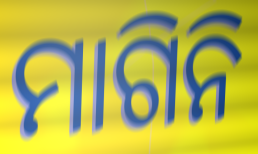
ମାଗିନି